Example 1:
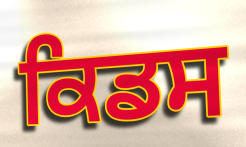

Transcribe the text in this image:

ਕਿਡਸ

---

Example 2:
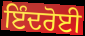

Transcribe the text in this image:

ਇੰਦਰੋਈ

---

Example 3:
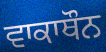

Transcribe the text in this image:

ਵਾਕਾਥੌਨ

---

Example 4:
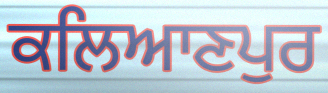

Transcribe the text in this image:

ਕਲਿਆਣਪੁਰ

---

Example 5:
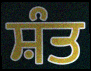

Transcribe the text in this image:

ਸ਼ੰਤ